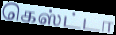
கெஸ்ட்டா